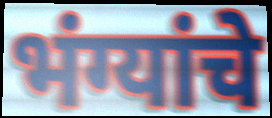
भंग्यांचे